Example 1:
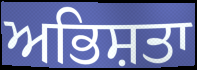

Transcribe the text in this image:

ਅਭਿਸ਼ਤਾ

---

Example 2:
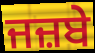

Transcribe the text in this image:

ਜਜ਼ਬੇ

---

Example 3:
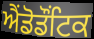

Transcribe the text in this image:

ਐਂਡੋਡੌਂਟਿਕ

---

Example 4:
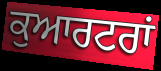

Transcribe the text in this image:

ਕੁਆਰਟਰਾਂ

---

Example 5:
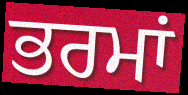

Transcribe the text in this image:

ਭਰਮਾਂ